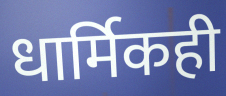
धार्मिकही